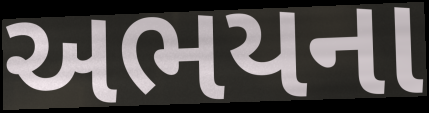
અભયના